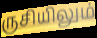
ருசியிலும்